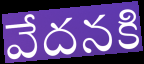
వేదనకి